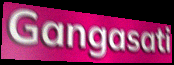
Gangasati